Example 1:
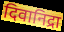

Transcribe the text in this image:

दिवानिद्रा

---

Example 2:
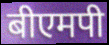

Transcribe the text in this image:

बीएमपी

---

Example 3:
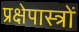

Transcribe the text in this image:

प्रक्षेपास्त्रों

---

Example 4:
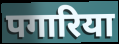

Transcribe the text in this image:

पगारिया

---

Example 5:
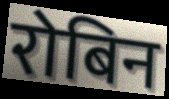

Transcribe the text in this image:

रोबिन